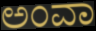
ಅಂವಾ